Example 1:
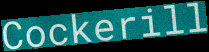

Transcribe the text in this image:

Cockerill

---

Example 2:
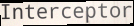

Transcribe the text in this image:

Interceptor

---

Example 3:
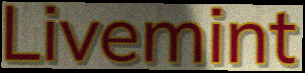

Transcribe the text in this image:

Livemint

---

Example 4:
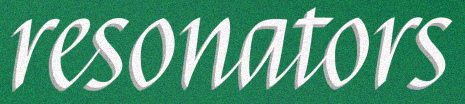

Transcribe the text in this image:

resonators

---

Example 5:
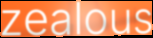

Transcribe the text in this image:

zealous